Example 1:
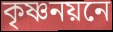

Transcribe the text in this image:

কৃষ্ণনয়নে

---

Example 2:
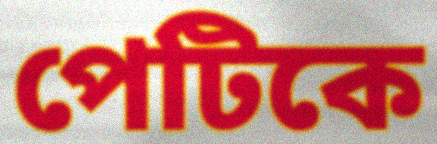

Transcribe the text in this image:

পেটিকে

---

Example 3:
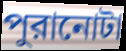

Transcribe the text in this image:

পুরানোটা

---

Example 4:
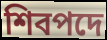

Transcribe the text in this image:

শিবপদে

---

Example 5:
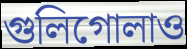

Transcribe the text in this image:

গুলিগোলাও